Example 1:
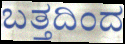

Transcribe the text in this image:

ಬತ್ತದಿಂದ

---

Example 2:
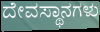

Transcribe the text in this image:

ದೇವಸ್ಥಾನಗಳು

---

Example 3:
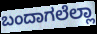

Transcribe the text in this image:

ಬಂದಾಗಲೆಲ್ಲಾ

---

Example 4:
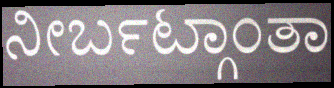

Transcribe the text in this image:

ನೀರ್ಬಟ್ಗಾಂತಾ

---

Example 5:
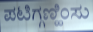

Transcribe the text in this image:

ಪಟಿಗ್ಗಣ್ಹಿಂಸು